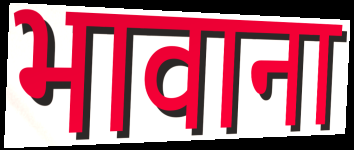
भावाना